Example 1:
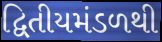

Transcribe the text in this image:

દ્વિતીયમંડળથી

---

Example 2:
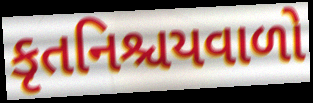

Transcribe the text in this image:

કૃતનિશ્ચયવાળો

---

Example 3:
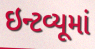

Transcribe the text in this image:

ઇન્ટવ્યૂમાં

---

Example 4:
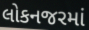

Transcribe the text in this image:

લોકનજરમાં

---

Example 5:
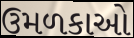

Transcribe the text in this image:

ઉમળકાઓ